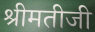
श्रीमतीजी